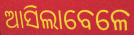
ଆସିଲାବେଳେ